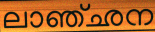
ലാഞ്ഛന